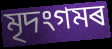
মৃদংগমৰ